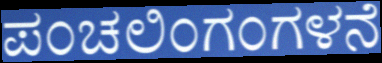
ಪಂಚಲಿಂಗಂಗಳನೆ